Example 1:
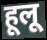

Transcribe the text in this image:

हूलू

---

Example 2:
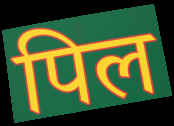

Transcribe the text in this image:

पिल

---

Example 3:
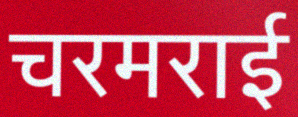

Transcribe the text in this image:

चरमराई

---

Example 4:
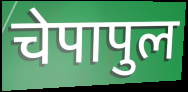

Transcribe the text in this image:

चेपापुल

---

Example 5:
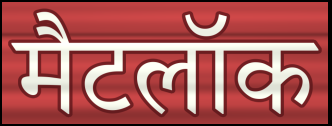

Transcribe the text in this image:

मैटलॉक